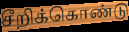
சீறிக்கொண்டு